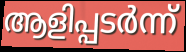
ആളിപ്പടർന്ന്